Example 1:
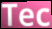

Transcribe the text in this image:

Tec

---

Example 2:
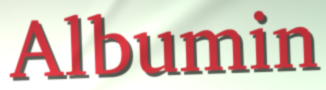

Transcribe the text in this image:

Albumin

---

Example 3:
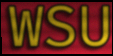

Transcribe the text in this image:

WSU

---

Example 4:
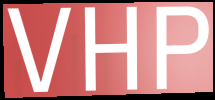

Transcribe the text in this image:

VHP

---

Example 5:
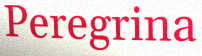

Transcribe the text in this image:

Peregrina